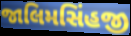
જાલિમસિંહજી